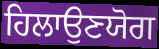
ਹਿਲਾਉਣਯੋਗ